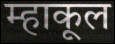
म्हाकूल